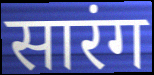
सारंग